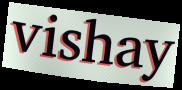
vishay